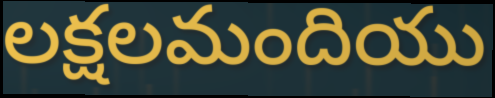
లక్షలమందియు